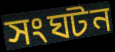
সংঘটন